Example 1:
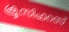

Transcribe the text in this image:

ക്രൂസിഫറസ്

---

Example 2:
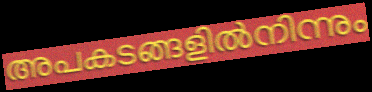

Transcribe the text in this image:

അപകടങ്ങളിൽനിന്നും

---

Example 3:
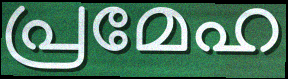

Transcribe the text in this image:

പ്രമേഹ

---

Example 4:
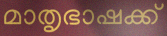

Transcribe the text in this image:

മാതൃഭാഷക്ക്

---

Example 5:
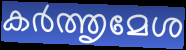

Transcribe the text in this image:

കർത്തൃമേശ